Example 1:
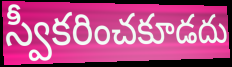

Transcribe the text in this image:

స్వీకరించకూడదు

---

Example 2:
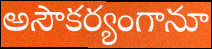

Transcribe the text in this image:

అసౌకర్యంగానూ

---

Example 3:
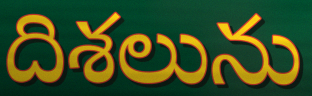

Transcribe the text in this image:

దిశలును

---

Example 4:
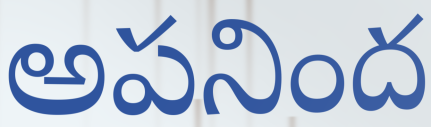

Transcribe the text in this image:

అపనింద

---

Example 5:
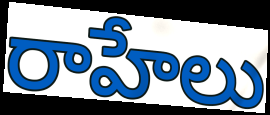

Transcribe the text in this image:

రాహేలు